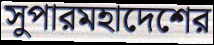
সুপারমহাদেশের